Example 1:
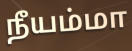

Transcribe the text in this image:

நீயம்மா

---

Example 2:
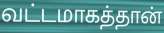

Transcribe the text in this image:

வட்டமாகத்தான்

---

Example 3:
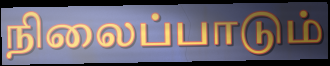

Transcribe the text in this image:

நிலைப்பாடும்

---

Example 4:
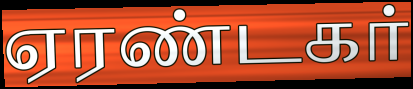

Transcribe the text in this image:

ஏரண்டகர்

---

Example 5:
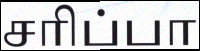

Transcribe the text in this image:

சரிப்பா